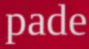
pade